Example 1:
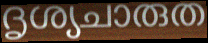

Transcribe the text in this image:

ദൃശ്യചാരുത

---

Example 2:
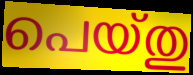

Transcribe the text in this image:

പെയ്തു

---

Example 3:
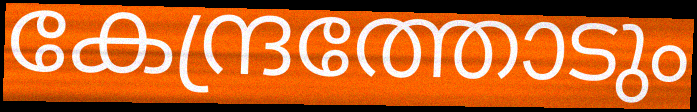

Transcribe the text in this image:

കേന്ദ്രത്തോടും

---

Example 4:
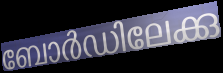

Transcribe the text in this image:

ബോർഡിലേക്കു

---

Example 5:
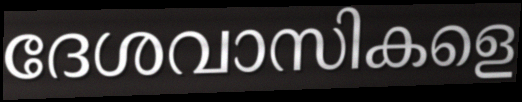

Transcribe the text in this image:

ദേശവാസികളെ